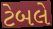
ટેબલે